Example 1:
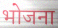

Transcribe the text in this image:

भोजना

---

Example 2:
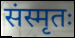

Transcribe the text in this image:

संस्मृतः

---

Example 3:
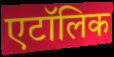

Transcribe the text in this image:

एटॉलिक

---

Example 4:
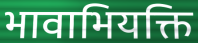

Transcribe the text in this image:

भावाभियक्ति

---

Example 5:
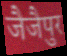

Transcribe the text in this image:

जैजैपुर